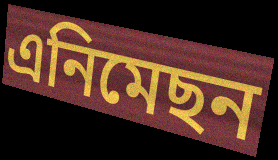
এনিমেছন